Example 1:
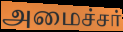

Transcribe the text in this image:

அமைச்சர்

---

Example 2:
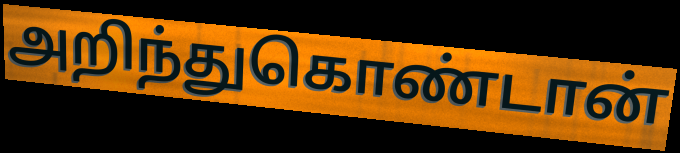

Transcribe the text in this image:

அறிந்துகொண்டான்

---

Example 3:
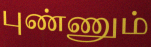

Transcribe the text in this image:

புண்ணும்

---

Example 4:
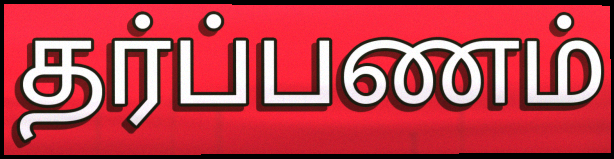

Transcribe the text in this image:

தர்ப்பணம்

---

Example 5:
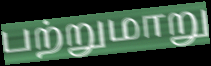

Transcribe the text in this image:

பற்றுமாறு